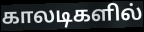
காலடிகளில்